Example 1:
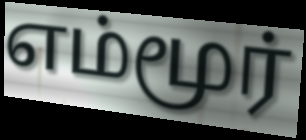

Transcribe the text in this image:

எம்மூர்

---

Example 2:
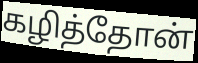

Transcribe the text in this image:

கழித்தோன்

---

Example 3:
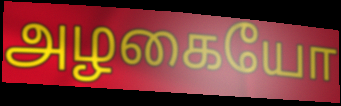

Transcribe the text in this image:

அழகையோ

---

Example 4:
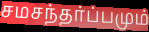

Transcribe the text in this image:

சமசந்தர்ப்பமும்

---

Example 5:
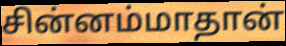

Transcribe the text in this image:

சின்னம்மாதான்